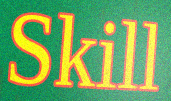
Skill